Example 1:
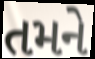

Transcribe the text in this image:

તમને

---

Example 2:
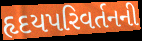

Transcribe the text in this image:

હૃદયપરિવર્તનની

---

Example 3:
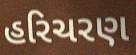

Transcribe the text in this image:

હરિચરણ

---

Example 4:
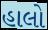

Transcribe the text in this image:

હાલો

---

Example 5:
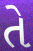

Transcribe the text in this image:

તે